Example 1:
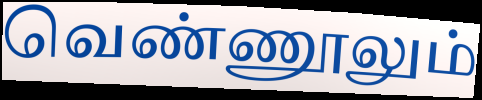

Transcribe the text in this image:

வெண்ணூலும்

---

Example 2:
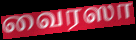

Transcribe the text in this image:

வைரஸா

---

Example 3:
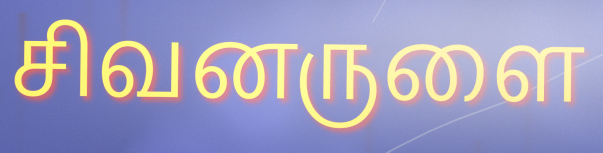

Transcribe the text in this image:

சிவனருளை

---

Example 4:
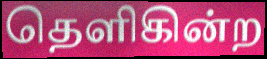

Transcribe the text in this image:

தெளிகின்ற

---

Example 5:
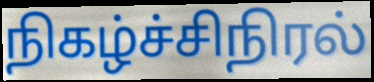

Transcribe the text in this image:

நிகழ்ச்சிநிரல்